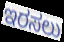
ಇರಸಲು